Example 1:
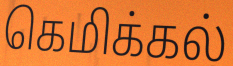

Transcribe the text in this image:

கெமிக்கல்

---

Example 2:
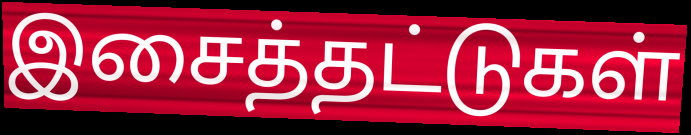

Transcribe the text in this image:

இசைத்தட்டுகள்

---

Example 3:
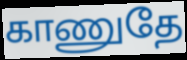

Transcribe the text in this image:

காணுதே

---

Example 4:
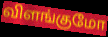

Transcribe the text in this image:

விளங்குமோ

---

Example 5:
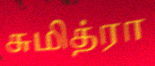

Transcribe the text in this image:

சுமித்ரா